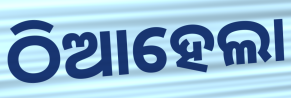
ଠିଆହେଲା